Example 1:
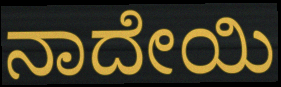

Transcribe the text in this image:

ನಾದೇಯಿ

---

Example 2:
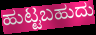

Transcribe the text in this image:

ಹುಟ್ಟಬಹುದು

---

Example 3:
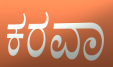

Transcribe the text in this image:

ಕರವಾ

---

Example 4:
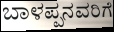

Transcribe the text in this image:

ಬಾಳಪ್ಪನವರಿಗೆ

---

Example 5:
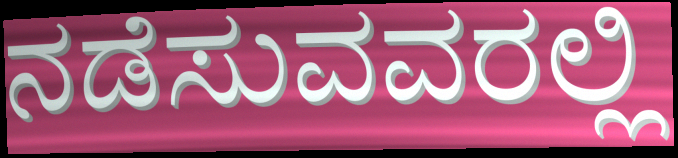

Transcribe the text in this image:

ನಡೆಸುವವರಲ್ಲಿ